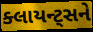
ક્લાયન્ટ્સને